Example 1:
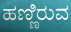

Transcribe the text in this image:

ಹಣ್ಣಿರುವ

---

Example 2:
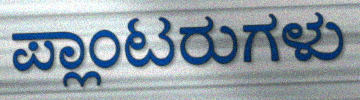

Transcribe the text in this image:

ಪ್ಲಾಂಟರುಗಳು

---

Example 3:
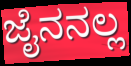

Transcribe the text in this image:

ಜೈನನಲ್ಲ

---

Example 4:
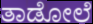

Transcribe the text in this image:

ತಾಡೋಲೆ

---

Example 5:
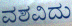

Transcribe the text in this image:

ವಶವಿದು